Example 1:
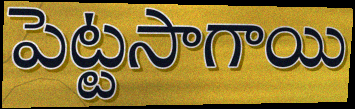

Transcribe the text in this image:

పెట్టసాగాయి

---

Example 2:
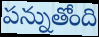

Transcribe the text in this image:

పన్నుతోంది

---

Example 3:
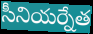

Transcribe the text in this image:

సీనియర్నేత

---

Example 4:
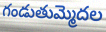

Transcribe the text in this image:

గండుతుమ్మెదల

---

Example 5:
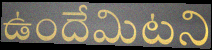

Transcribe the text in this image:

ఉందేమిటని